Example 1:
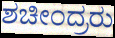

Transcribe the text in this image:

ಶಚೀಂದ್ರರು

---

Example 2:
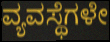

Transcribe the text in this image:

ವ್ಯವಸ್ಥೆಗಳೇ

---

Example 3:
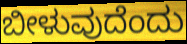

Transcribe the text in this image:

ಬೀಳುವುದೆಂದು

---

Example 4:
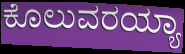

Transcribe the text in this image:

ಕೊಲುವರಯ್ಯಾ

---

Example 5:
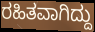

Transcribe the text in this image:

ರಹಿತವಾಗಿದ್ದು